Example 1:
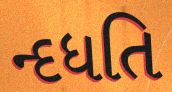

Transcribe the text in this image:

ન્દધતિ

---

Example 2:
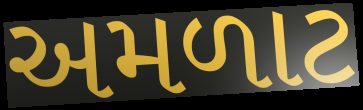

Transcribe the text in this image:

અમળાટ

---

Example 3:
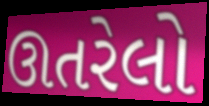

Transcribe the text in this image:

ઊતરેલો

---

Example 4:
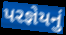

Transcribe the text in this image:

પરજ્ઞેયનું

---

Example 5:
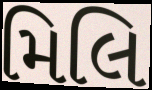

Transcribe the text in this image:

મિલિ